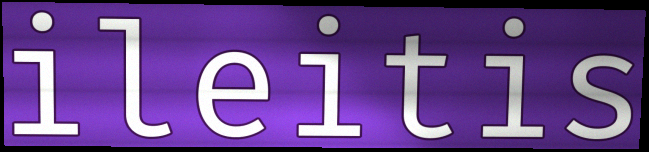
ileitis